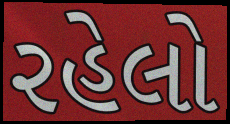
રહેલો